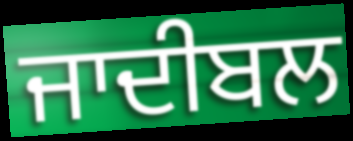
ਜਾਦੀਬਲ